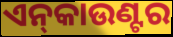
ଏନ୍‌କାଉଣ୍ଟର